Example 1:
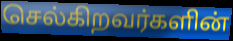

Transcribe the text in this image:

செல்கிறவர்களின்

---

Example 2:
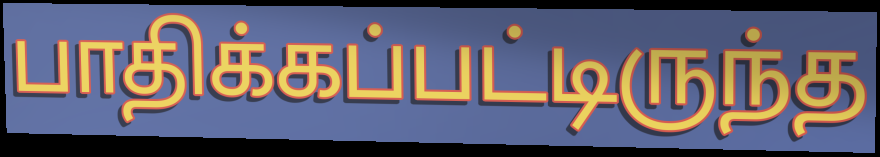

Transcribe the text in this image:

பாதிக்கப்பட்டிருந்த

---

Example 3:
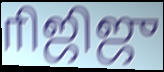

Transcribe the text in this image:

ரிஜிஜு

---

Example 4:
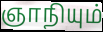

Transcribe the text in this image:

ஞாநியும்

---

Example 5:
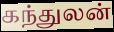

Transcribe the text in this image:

கந்துலன்